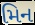
મિન